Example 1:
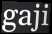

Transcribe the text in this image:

gaji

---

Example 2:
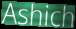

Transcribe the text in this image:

Ashich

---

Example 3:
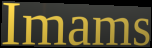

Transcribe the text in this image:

Imams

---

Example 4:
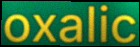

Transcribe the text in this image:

oxalic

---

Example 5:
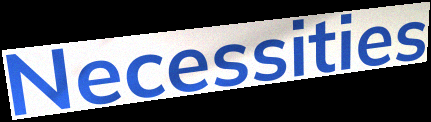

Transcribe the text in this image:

Necessities